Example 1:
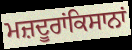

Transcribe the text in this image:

ਮਜ਼ਦੂਰਾਂਕਿਸਾਨਾਂ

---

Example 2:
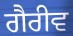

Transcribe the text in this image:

ਗੈਰੀਵ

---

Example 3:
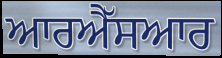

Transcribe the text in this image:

ਆਰਐੱਸਆਰ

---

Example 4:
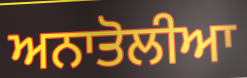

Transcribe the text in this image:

ਅਨਾਤੋਲੀਆ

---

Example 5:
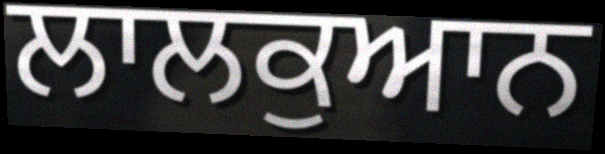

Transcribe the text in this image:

ਲਾਲਕੁਆਨ